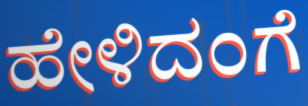
ಹೇಳಿದಂಗೆ